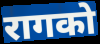
रागको